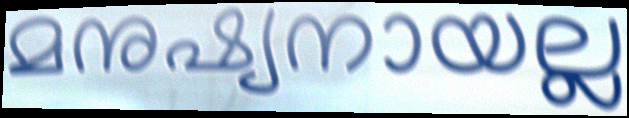
മനുഷ്യനായല്ല